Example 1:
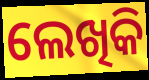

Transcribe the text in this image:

ଲେଖିକି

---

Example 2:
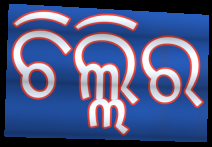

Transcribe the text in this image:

ଚିଲ୍ଲିର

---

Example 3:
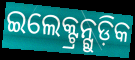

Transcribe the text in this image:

ଇଲେକ୍ଟ୍ରନ୍ଗୁଡ଼ିକ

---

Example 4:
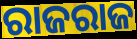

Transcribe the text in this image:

ରାଜରାଜ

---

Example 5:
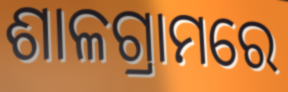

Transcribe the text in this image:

ଶାଳଗ୍ରାମରେ